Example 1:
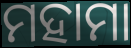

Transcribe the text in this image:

ମହାମା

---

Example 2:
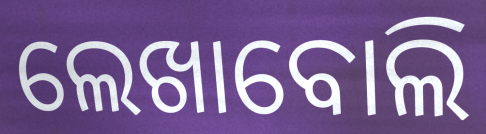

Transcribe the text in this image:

ଲେଖାବୋଲି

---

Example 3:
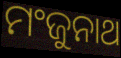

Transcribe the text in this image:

ମଂଜୁନାଥ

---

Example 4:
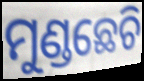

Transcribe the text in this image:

ମୁଣ୍ଡଛେଚି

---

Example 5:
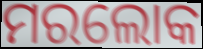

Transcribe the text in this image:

ମରଲୋକ